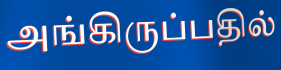
அங்கிருப்பதில்